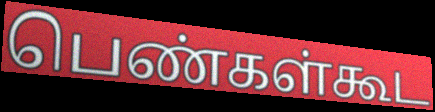
பெண்கள்கூட